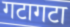
गटागटा